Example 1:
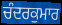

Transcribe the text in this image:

ਚੰਦਰਕੁਮਾਰ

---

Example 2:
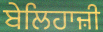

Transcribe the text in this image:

ਬੇਲਿਹਾਜ਼ੀ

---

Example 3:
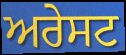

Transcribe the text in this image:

ਅਰੇਸਟ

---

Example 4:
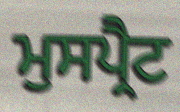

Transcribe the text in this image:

ਮੁਸਪ੍ਰੈਟ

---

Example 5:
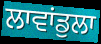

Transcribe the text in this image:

ਲਾਵਾਂਡੁਲਾ